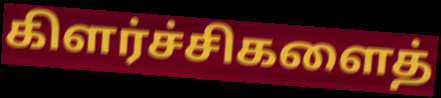
கிளர்ச்சிகளைத்